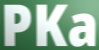
PKa